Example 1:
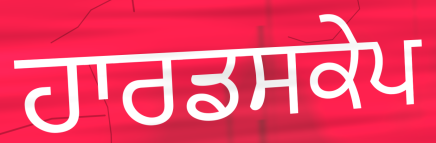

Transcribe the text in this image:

ਹਾਰਡਸਕੇਪ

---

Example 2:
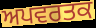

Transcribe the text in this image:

ਅਪਵਰਤਕ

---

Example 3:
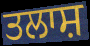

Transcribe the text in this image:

ਤਲਾਸ਼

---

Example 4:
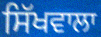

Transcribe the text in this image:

ਸਿੱਖਵਾਲਾ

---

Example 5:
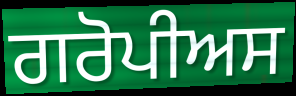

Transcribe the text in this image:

ਗਰੋਪੀਅਸ